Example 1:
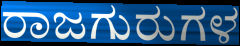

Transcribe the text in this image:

ರಾಜಗುರುಗಳ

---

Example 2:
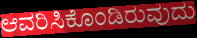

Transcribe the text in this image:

ಆವರಿಸಿಕೊಂಡಿರುವುದು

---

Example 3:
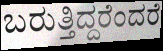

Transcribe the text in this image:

ಬರುತ್ತಿದ್ದರೆಂದರೆ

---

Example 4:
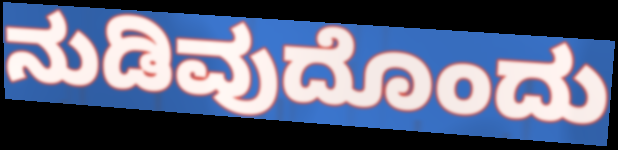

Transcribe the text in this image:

ನುಡಿವುದೊಂದು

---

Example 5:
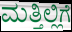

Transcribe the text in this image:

ಮತ್ತಿಲ್ಲಿಗೆ